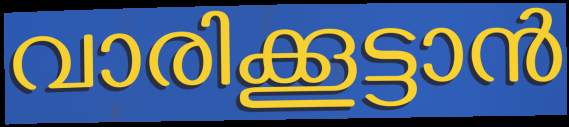
വാരിക്കൂട്ടാൻ